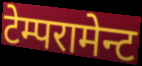
टेम्परामेन्ट